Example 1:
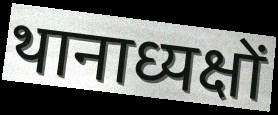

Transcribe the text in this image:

थानाध्यक्षों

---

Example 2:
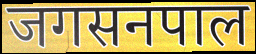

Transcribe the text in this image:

जगसनपाल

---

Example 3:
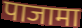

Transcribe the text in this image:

पाजामा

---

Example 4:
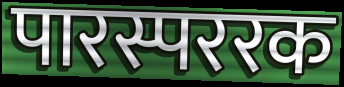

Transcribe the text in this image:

पारस्पररक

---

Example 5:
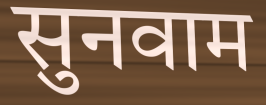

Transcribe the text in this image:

सुनवाम